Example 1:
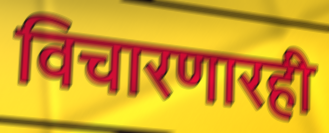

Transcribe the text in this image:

विचारणारही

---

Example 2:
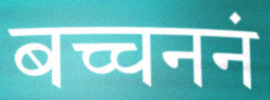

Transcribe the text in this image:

बच्चननं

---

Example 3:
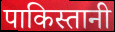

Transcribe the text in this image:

पाकिस्तानी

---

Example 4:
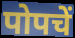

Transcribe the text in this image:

पोपचें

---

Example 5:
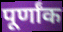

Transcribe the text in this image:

पूर्णांक